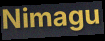
Nimagu